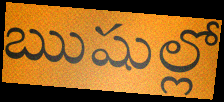
ఋషుల్లో